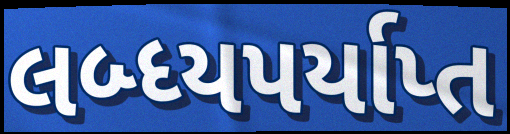
લબ્ધ્યપર્યાપ્ત